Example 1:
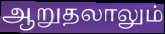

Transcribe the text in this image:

ஆறுதலாலும்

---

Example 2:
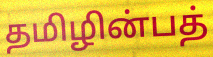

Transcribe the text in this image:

தமிழின்பத்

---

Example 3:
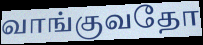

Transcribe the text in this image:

வாங்குவதோ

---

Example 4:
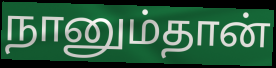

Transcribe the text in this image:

நானும்தான்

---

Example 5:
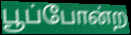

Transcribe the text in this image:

பூப்போன்ற